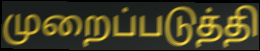
முறைப்படுத்தி